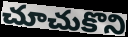
చూచుకొని